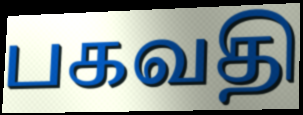
பகவதி